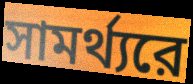
সামর্থ্যরে